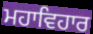
ਮਹਾਵਿਹਾਰ